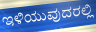
ಇಳಿಯುವುದರಲ್ಲಿ